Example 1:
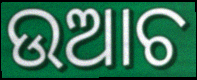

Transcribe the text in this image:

ଉଆଚ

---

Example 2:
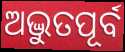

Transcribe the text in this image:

ଅଦ୍ଭୁତପୂର୍ବ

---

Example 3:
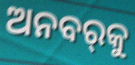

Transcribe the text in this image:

ଅନବର୍‌କୁ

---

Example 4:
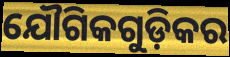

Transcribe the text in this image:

ଯୌଗିକଗୁଡ଼ିକର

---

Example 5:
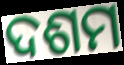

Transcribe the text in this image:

ଦଶମ